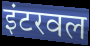
इंटरवल